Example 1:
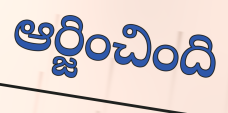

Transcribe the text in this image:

ఆర్జించింది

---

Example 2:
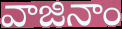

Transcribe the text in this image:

వాజినాం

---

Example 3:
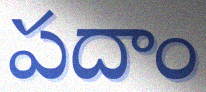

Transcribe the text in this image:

పదాం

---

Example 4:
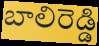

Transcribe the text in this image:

బాలిరెడ్డి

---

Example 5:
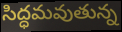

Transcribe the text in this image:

సిద్ధమవుతున్న